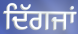
ਦਿੱਗਜਾਂ